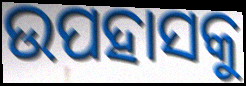
ଉପହାସକୁ